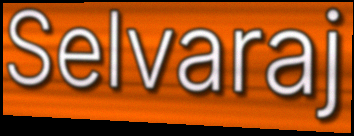
Selvaraj